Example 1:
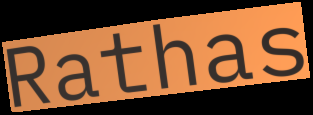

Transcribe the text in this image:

Rathas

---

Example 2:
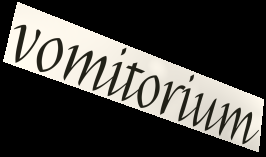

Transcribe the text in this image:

vomitorium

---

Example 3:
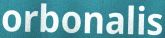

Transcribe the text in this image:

orbonalis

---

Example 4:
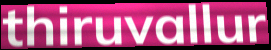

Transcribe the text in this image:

thiruvallur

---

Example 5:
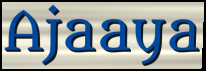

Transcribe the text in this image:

Ajaaya